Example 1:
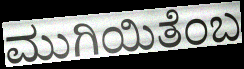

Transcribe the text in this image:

ಮುಗಿಯಿತೆಂಬ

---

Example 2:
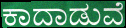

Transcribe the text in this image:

ಕಾದಾಡುವೆ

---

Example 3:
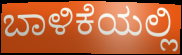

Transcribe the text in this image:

ಬಾಳಿಕೆಯಲ್ಲಿ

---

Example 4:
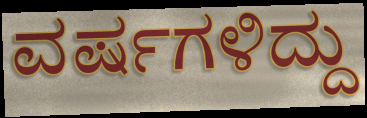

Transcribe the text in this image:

ವರ್ಷಗಳಿದ್ದು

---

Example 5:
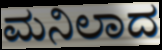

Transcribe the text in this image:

ಮನಿಲಾದ